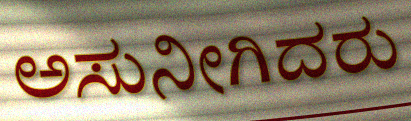
ಅಸುನೀಗಿದರು